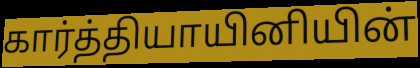
கார்த்தியாயினியின்